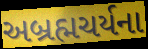
અબ્રહ્મચર્યના